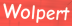
Wolpert